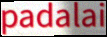
padalai